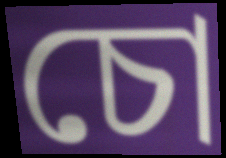
চো